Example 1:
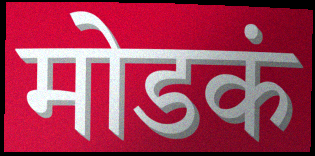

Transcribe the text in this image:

मोडकं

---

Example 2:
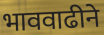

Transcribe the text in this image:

भाववाढीने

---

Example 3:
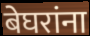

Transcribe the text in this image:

बेघरांना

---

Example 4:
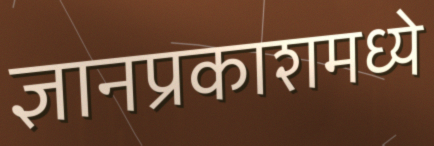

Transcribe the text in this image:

ज्ञानप्रकाशमध्ये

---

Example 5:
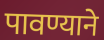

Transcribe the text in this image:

पावण्याने